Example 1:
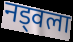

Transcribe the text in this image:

नड्वला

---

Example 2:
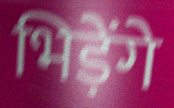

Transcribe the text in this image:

भिड़ेंगे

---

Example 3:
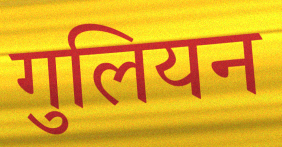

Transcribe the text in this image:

गुलियन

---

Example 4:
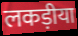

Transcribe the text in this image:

लकड़ीया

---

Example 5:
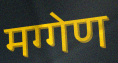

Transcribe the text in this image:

मग्गेण